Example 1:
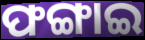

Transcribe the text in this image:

ଫଙ୍ଗାଇ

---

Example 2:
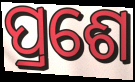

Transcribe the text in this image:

ପ୍ରଶେ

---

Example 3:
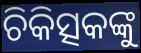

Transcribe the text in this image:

ଚିକିତ୍ସକଙ୍କୁ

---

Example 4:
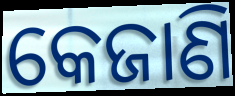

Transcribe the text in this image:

କେଜାଣି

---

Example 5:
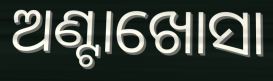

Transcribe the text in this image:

ଅଣ୍ଟାଖୋସା